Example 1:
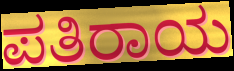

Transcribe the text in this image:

ಪತಿರಾಯ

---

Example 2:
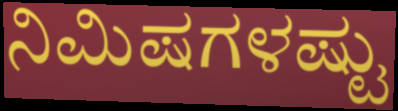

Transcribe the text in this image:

ನಿಮಿಷಗಳಷ್ಟು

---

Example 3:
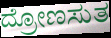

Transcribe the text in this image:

ದ್ರೋಣಸುತ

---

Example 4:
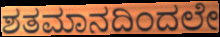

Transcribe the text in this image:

ಶತಮಾನದಿಂದಲೇ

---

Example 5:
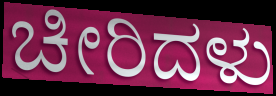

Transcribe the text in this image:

ಚೀರಿದಳು